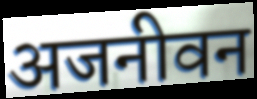
अजनीवन